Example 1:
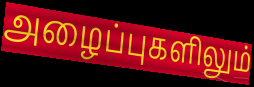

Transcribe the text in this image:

அழைப்புகளிலும்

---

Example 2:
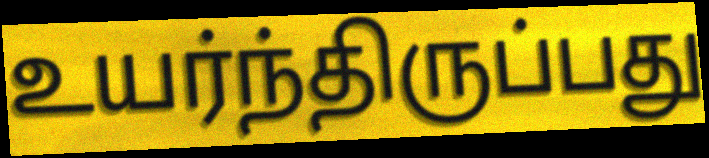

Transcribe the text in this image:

உயர்ந்திருப்பது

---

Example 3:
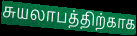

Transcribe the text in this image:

சுயலாபத்திற்காக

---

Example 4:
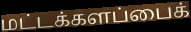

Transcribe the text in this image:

மட்டக்களப்பைக்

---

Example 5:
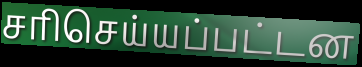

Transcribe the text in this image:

சரிசெய்யப்பட்டன